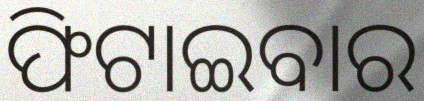
ଫିଟାଇବାର